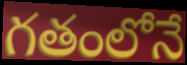
గతంలోనే